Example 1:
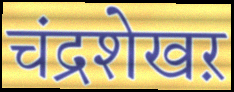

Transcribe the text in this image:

चंद्रशेखऱ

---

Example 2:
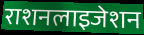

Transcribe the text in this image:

राशनलाइजेशन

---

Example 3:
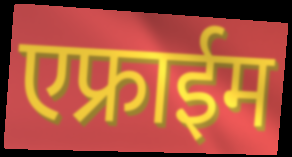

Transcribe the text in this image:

एफ्राईम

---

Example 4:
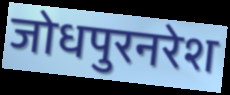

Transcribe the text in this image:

जोधपुरनरेश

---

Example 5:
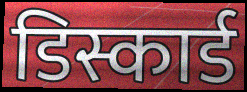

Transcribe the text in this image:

डिस्कार्ड